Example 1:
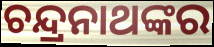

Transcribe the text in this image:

ଚନ୍ଦ୍ରନାଥଙ୍କର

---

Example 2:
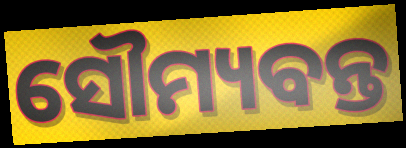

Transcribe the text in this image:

ସୌମ୍ୟବନ୍ତ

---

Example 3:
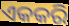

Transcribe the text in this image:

ଏକକରି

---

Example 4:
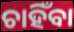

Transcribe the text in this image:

ଚାହିଁବା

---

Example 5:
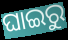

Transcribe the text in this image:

ଘାଇରୁ